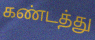
கண்டத்து